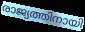
രാജ്യത്തിനായി